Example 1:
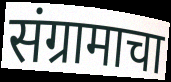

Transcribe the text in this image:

संग्रामाचा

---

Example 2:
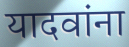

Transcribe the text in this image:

यादवांना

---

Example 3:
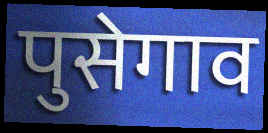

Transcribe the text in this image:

पुसेगाव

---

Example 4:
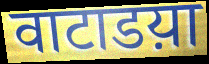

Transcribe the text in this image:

वाटाडय़ा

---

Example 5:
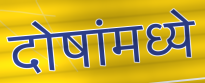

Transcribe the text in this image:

दोषांमध्ये